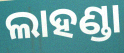
ଲାହଣ୍ଡା